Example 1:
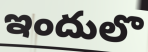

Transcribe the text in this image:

ఇందులొ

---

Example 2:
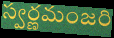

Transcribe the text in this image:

స్వర్ణమంజరి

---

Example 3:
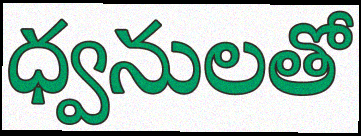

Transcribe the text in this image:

ధ్వనులతో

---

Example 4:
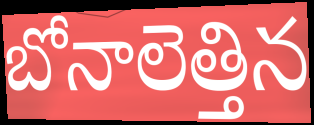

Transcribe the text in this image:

బోనాలెత్తిన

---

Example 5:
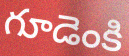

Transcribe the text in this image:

గూడెంకి